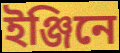
ইঞ্জিনে